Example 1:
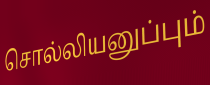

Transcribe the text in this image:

சொல்லியனுப்பும்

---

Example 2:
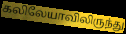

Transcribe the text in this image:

கலிலேயாவிலிருந்து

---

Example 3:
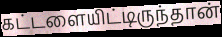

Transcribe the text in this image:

கட்டளையிட்டிருந்தான்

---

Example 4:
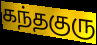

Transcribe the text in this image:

கந்தகுரு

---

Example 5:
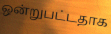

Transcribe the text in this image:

ஒன்றுபட்டதாக